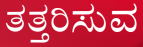
ತತ್ತರಿಸುವ